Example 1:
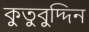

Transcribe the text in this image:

কুতুবুদ্দিন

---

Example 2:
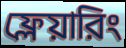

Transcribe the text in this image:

ফ্লেয়ারিং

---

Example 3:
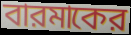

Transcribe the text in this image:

বারমাকের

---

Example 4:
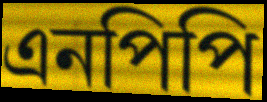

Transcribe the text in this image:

এনপিপি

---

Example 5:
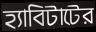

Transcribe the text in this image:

হ্যাবিটাটের